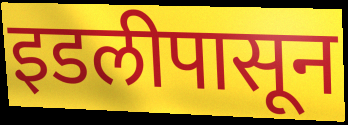
इडलीपासून